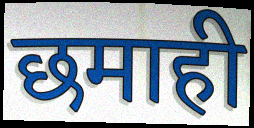
छमाही